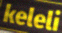
keleli